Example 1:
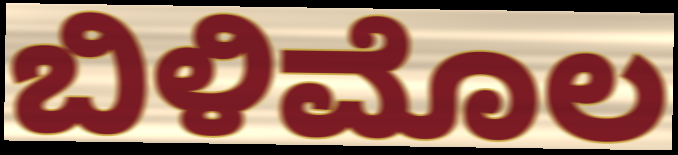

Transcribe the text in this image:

ಬಿಳಿಮೊಲ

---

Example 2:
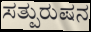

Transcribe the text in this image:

ಸತ್ಪುರುಷನ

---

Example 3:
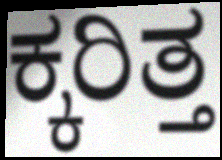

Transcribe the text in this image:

ಕ್ಕರಿತ್ತ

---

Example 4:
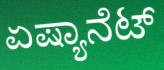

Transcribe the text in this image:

ಏಷ್ಯಾನೆಟ್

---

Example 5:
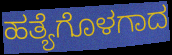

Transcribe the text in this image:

ಹತ್ಯೆಗೊಳಗಾದ